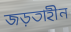
জড়তাহীন